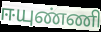
ஈயுண்ணி